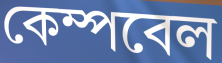
কেম্পবেল